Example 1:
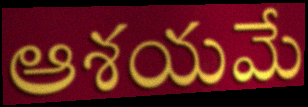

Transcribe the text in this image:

ఆశయమే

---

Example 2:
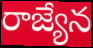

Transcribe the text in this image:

రాజ్యేన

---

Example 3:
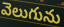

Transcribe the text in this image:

వెలుగును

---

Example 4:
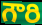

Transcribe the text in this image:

గౌరి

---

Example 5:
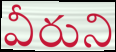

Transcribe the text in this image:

వీరుని